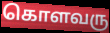
கொளவரு